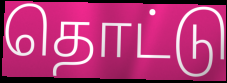
தொட்டு